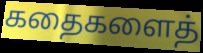
கதைகளைத்